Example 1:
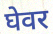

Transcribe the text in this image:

घेवर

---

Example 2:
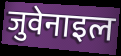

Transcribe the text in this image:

जुवेनाइल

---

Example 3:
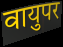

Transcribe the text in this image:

वायुपर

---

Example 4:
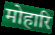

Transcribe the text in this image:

मोहारि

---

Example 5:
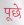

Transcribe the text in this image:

पूछे